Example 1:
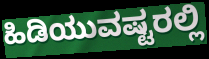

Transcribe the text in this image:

ಹಿಡಿಯುವಷ್ಟರಲ್ಲಿ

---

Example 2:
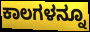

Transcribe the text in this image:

ಕಾಲಗಳನ್ನೂ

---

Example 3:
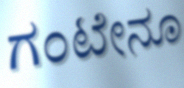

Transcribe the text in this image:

ಗಂಟೇನೂ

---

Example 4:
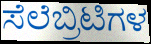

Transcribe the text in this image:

ಸೆಲೆಬ್ರಿಟಿಗಳ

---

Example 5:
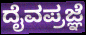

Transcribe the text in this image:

ದೈವಪ್ರಜ್ಞೆ